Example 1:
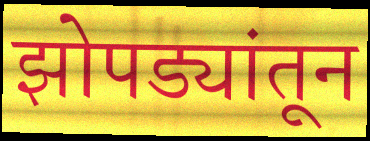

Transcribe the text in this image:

झोपड्यांतून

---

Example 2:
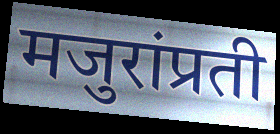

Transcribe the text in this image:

मजुरांप्रती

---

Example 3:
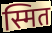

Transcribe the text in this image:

स्मित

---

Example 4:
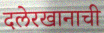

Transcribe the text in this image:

दलेरखानाची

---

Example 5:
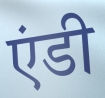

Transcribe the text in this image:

एंडी